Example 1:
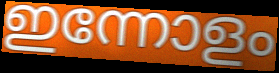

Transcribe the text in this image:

ഇന്നോളം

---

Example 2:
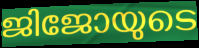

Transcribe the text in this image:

ജിജോയുടെ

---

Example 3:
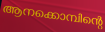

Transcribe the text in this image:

ആനക്കൊമ്പിന്റെ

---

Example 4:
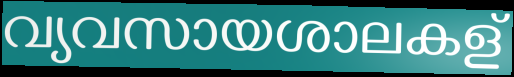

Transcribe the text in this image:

വ്യവസായശാലകള്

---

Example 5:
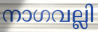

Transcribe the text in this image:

നാഗവല്ലി